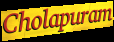
Cholapuram